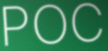
POC